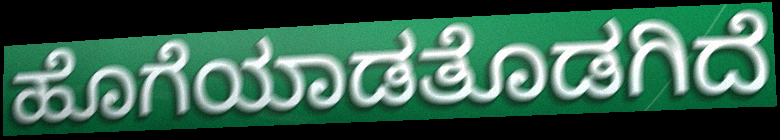
ಹೊಗೆಯಾಡತೊಡಗಿದೆ